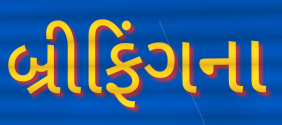
બ્રીફિંગના